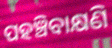
ପହଞ୍ଚିବାକ୍ଷଣି